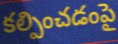
కల్పించడంపై